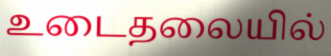
உடைதலையில்